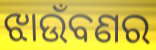
ଝାଉଁବଣର